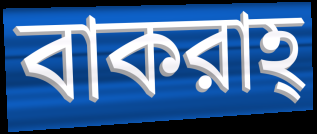
বাকরাহ্